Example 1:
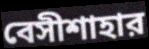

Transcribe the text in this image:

বেসীশাহার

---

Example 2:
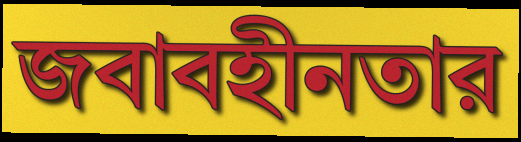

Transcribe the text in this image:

জবাবহীনতার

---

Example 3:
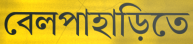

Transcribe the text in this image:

বেলপাহাড়িতে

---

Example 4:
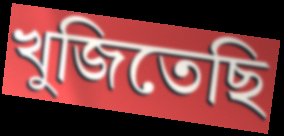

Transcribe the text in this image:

খুজিতেছি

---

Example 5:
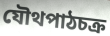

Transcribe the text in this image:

যৌথপাঠচক্র